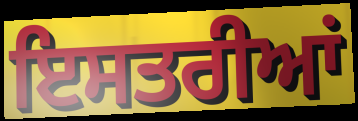
ਇਸਤਰੀਆਂ